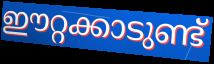
ഈറ്റക്കാടുണ്ട്